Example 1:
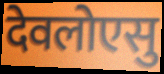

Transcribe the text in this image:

देवलोएसु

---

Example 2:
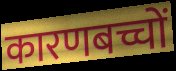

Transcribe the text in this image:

कारणबच्चों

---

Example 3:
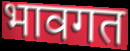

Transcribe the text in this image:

भावगत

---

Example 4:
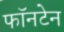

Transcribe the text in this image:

फॉनटेन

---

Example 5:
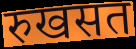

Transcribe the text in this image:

रुखसत